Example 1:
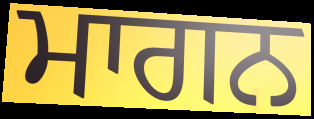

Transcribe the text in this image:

ਮਾਗਨ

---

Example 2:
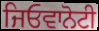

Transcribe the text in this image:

ਜਿਓਵਾਨੋਟੀ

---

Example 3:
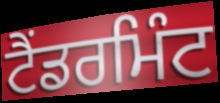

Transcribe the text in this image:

ਟੈਂਡਰਮਿੰਟ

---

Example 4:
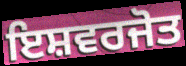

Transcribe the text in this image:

ਇਸ਼ਵਰਜੋਤ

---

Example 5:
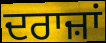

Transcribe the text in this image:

ਦਰਾਜ਼ਾਂ